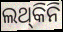
ଲଥ୍‍କିନି